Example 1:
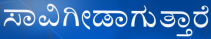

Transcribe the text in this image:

ಸಾವಿಗೀಡಾಗುತ್ತಾರೆ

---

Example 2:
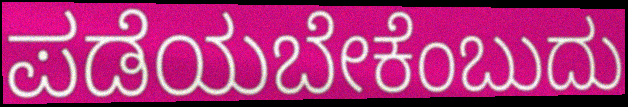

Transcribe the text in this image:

ಪಡೆಯಬೇಕೆಂಬುದು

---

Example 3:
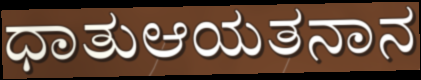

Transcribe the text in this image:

ಧಾತುಆಯತನಾನ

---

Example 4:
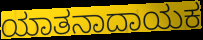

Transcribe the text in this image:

ಯಾತನಾದಾಯಕ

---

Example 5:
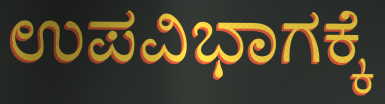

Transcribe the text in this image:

ಉಪವಿಭಾಗಕ್ಕೆ